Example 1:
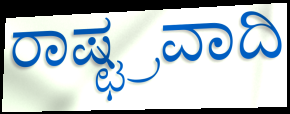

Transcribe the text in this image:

ರಾಷ್ಟ್ರವಾದಿ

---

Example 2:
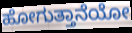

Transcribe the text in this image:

ಹೋಗುತ್ತಾನೆಯೋ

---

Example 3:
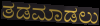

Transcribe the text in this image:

ತಡಮಾಡಲು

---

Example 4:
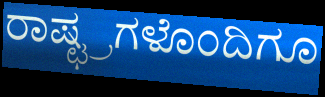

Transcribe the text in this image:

ರಾಷ್ಟ್ರಗಳೊಂದಿಗೂ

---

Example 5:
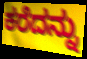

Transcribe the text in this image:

ಕರೆದನ್ನು